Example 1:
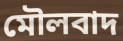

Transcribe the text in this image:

মৌলবাদ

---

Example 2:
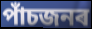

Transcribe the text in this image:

পাঁচজনৰ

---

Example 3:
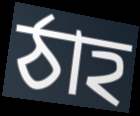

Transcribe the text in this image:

ঠাহ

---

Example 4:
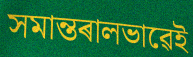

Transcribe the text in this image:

সমান্তৰালভাৱেই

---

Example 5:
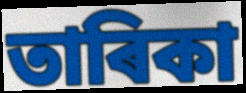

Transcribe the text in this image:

তাৰিকা